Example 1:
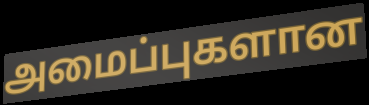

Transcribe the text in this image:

அமைப்புகளான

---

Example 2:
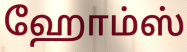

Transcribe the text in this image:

ஹோம்ஸ்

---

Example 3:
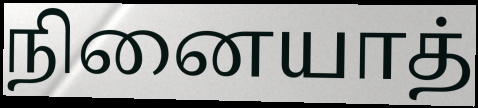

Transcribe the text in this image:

நினையாத்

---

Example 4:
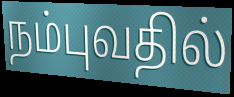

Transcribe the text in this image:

நம்புவதில்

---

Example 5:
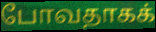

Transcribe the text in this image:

போவதாகக்